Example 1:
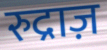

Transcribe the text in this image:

रुद्राज़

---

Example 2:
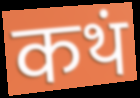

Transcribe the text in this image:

कथं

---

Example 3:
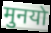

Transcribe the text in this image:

मुनयो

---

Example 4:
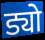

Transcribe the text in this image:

ड्यो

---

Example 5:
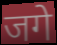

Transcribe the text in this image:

जगे